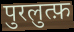
पुरलुत्फ़